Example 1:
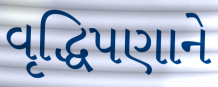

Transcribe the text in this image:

વૃદ્ધિપણાને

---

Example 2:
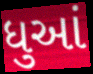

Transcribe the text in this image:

ધુઆં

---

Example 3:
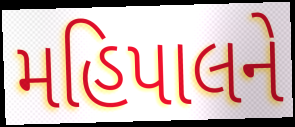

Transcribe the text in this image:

મહિપાલને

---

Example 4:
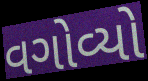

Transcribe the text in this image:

વગોવ્યો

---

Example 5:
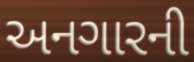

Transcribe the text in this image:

અનગારની